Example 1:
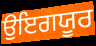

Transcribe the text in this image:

ਉਇਗਯੂਰ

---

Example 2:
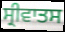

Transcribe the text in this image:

ਸ੍ਰੀਵਾਤਸ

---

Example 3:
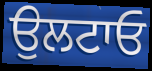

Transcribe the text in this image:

ਉਲਟਾਓ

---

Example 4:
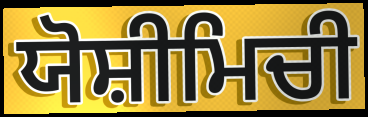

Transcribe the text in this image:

ਯੋਸ਼ੀਮਿਚੀ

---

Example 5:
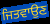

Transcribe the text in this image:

ਜਿਤਵਾਉਣ